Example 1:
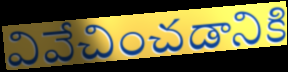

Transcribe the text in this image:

వివేచించడానికి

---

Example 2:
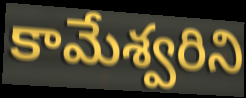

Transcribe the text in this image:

కామేశ్వరిని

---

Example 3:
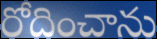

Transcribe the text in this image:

రోదించాను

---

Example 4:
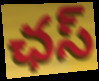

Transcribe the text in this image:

ఛస్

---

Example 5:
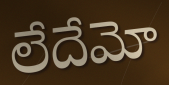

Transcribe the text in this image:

లేదేమో